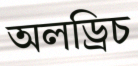
অলড্রিচ